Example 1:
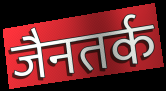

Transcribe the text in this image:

जैनतर्क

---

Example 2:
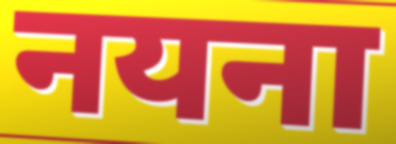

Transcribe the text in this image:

नयना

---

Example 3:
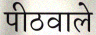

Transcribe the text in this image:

पीठवाले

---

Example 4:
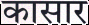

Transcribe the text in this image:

कासार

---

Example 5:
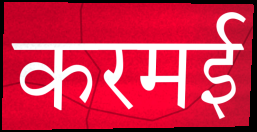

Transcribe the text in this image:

करमई